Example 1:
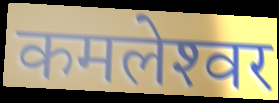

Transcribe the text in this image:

कमलेश्‍वर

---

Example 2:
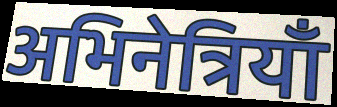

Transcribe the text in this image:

अभिनेत्रियाँ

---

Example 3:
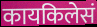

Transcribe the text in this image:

कायकिलेसं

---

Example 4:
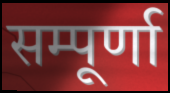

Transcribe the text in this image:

सम्पूर्णा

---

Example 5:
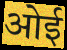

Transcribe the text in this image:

ओई